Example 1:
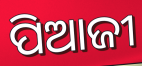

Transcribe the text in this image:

ପିଆଜୀ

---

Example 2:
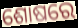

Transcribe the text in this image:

ଶୋଷରେ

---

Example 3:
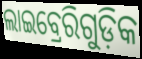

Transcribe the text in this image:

ଲାଇବ୍ରେରିଗୁଡ଼ିକ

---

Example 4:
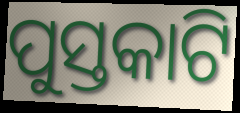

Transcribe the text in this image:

ପୁସ୍ତକାଟି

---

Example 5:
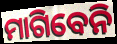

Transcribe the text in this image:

ମାଗିବେନି